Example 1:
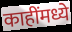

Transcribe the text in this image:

काहींमध्ये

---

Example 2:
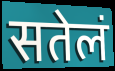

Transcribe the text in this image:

सतेलं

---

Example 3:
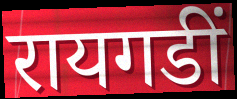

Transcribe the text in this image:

रायगडीं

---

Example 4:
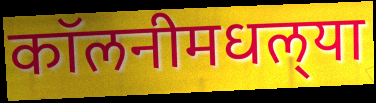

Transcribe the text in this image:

कॉलनीमधल्या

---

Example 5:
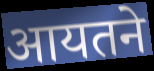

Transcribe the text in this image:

आयतने